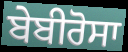
ਬੇਬੀਰੋਸਾ